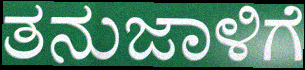
ತನುಜಾಳಿಗೆ